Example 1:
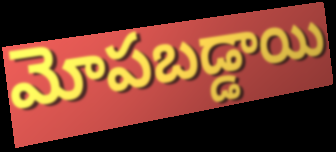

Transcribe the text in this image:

మోపబడ్డాయి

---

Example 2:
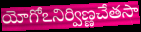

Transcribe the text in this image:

యోగోఽనిర్విణ్ణచేతసా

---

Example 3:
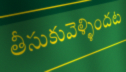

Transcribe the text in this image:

తీసుకువెళ్ళిందట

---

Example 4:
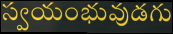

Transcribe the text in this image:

స్వయంభువుడగు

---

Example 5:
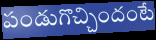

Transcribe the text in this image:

పండుగొచ్చిందంటే